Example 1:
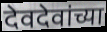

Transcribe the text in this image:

देवदेवांच्या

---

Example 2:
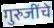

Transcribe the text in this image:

गुरुजींचे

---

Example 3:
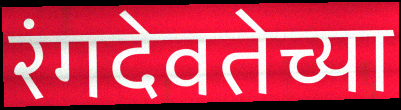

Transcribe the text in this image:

रंगदेवतेच्या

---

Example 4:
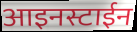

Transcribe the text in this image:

आइनस्टाईन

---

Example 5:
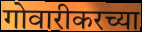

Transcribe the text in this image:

गोवारीकरच्या